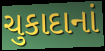
ચુકાદાનાં